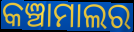
କଞ୍ଚାମାଲର